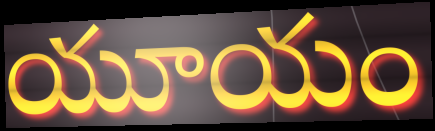
యూయం